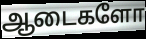
ஆடைகளோ